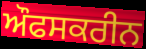
ਔਫਸਕਰੀਨ